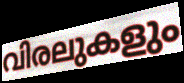
വിരലുകളും